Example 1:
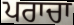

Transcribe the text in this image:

ਪਰਾਚਾ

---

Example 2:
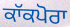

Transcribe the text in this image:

ਕਾੱਕਪੋਰਾ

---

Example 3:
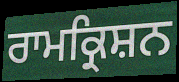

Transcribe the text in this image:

ਰਾਮਕ੍ਰਿਸ਼ਨ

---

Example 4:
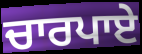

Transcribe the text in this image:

ਚਾਰਪਾਏ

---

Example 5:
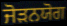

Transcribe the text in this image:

ਜੋੜਨਯੋਗ